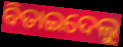
ବିତାଇଦେଲୁ